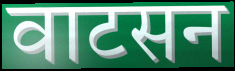
वाटसन